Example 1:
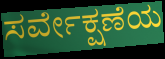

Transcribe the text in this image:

ಸರ್ವೇಕ್ಷಣೆಯ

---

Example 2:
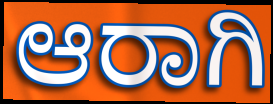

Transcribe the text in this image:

ಆರಾಗಿ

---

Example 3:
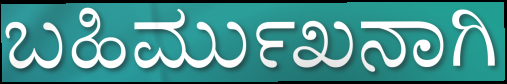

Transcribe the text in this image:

ಬಹಿರ್ಮುಖನಾಗಿ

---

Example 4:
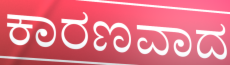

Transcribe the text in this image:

ಕಾರಣವಾದ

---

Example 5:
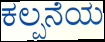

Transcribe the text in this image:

ಕಲ್ಪನೆಯ